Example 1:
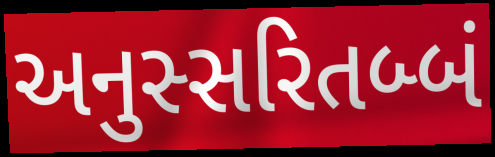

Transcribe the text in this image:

અનુસ્સરિતબ્બં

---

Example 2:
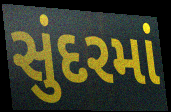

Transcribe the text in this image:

સુંદરમાં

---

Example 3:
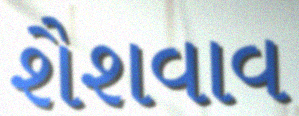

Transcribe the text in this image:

શૈશવાવ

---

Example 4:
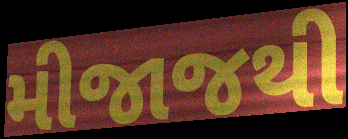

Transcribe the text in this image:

મીજાજથી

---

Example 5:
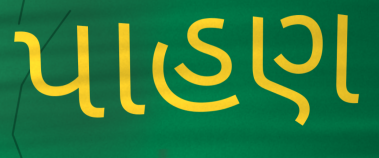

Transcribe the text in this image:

પાહણ